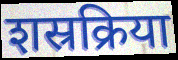
शस्रक्रिया